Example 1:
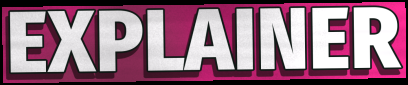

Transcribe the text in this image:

EXPLAINER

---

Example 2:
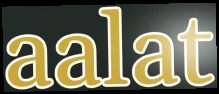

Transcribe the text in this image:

aalat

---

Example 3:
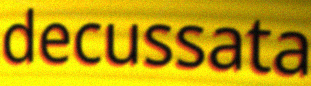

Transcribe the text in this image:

decussata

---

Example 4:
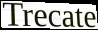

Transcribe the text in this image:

Trecate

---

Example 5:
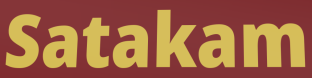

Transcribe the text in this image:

Satakam